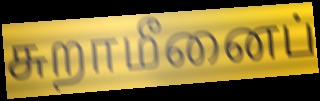
சுறாமீனைப்